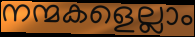
നന്മകളെല്ലാം